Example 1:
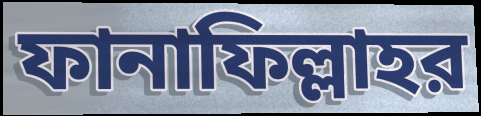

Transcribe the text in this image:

ফানাফিল্লাহর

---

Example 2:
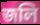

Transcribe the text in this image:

জলি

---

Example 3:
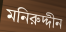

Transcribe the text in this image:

মনিরুদ্দীন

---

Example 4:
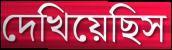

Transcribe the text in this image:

দেখিয়েছিস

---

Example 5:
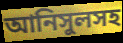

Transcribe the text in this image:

আনিসুলসহ